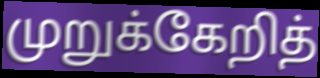
முறுக்கேறித்